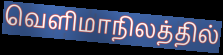
வெளிமாநிலத்தில்